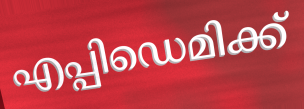
എപ്പിഡെമിക്ക്